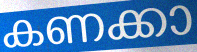
കണക്കാ